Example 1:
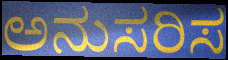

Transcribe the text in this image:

ಅನುಸರಿಸ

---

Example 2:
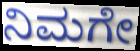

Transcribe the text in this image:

ನಿಮಗೇ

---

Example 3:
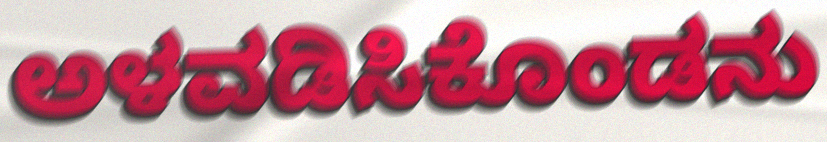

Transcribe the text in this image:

ಅಳವಡಿಸಿಕೊಂಡನು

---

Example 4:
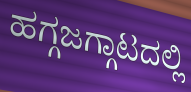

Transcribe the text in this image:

ಹಗ್ಗಜಗ್ಗಾಟದಲ್ಲಿ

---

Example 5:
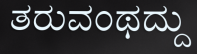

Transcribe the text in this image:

ತರುವಂಥದ್ದು